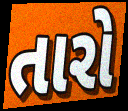
તારો